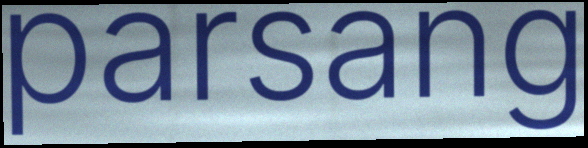
parsang